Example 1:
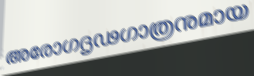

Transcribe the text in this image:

അരോഗദൃഢഗാത്രനുമായ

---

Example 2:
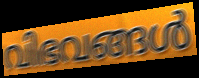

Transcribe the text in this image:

വിഭവങ്ങൾ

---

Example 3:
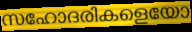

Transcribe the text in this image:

സഹോദരികളെയോ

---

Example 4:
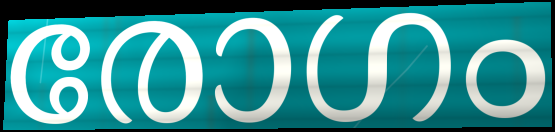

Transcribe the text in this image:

രോഗം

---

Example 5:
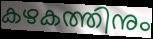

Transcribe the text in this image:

കഴകത്തിനും